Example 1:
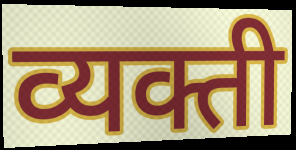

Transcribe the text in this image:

व्यक्ती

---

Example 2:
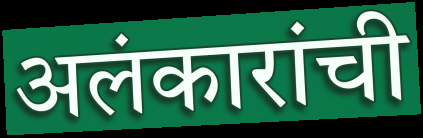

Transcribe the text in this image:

अलंकारांची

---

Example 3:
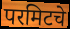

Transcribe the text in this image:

परमिटचे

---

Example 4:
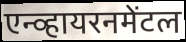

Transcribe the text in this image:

एन्व्हायरनमेंटल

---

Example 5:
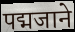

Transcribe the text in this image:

पद्मजाने